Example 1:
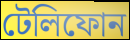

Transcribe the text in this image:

টেলিফোন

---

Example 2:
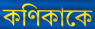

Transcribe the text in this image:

কণিকাকে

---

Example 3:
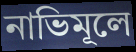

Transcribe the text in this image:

নাভিমূলে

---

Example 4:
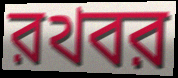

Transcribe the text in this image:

রথবর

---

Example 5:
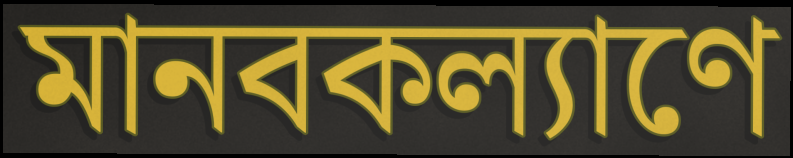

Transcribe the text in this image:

মানবকল্যাণে